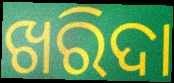
ଖରିଦା